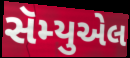
સૅમ્યુએલ